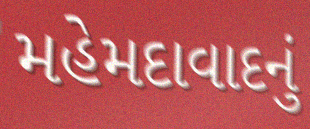
મહેમદાવાદનું